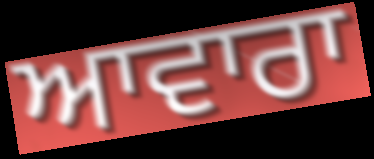
ਆਵਾਰਾ